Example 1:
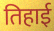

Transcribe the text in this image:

तिहाई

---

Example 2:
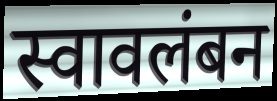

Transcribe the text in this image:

स्वावलंबन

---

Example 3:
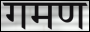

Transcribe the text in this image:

गमण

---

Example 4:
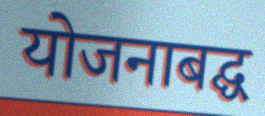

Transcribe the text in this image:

योजनाबद्घ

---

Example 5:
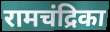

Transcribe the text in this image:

रामचंद्रिका